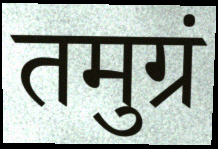
तमुग्रं